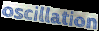
oscillation